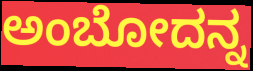
ಅಂಬೋದನ್ನ